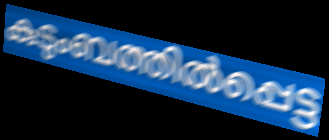
കുടുംബത്തിൽപ്പെട്ട